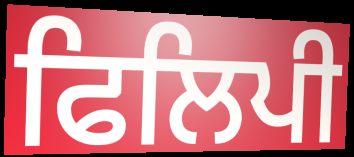
ਫਿਲਿਪੀ